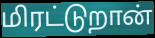
மிரட்டுறான்